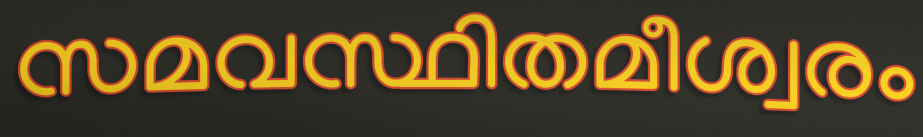
സമവസ്ഥിതമീശ്വരം